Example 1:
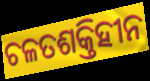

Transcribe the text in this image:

ଚଳତଶକ୍ତିହୀନ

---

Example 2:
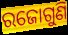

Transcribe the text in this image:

ରଜୋଗୁଣି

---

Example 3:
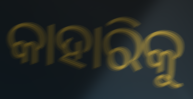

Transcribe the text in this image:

କାହାରିକୁ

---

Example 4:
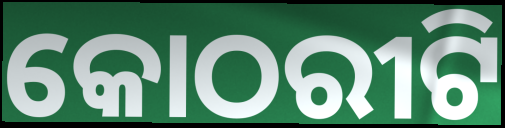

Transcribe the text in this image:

କୋଠରୀଟି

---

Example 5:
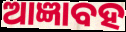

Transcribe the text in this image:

ଆଜ୍ଞାବହ